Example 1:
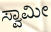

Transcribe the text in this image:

ಸ್ವಾಮೀ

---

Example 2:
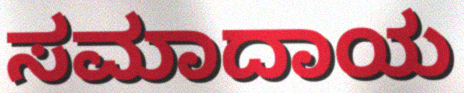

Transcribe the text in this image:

ಸಮಾದಾಯ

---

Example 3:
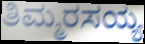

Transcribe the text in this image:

ತಿಮ್ಮರಸಯ್ಯ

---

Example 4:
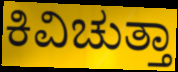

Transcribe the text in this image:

ಕಿವಿಚುತ್ತಾ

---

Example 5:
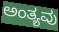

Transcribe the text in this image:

ಅಂತ್ಯವು